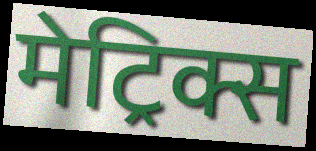
मेट्रिक्स